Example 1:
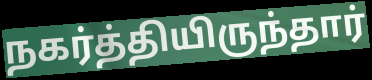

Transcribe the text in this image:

நகர்த்தியிருந்தார்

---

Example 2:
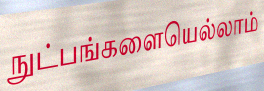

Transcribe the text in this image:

நுட்பங்களையெல்லாம்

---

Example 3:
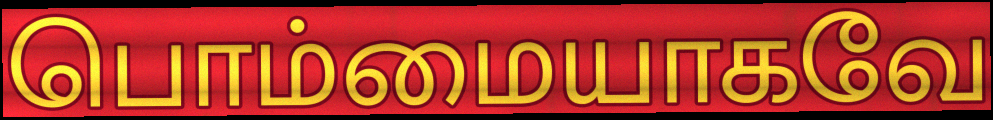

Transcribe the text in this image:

பொம்மையாகவே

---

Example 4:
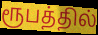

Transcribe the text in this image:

ரூபத்தில்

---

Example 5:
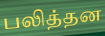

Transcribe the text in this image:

பலித்தன